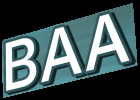
BAA